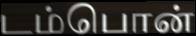
டம்பொன்